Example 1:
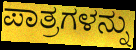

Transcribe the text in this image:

ಪಾತ್ರಗಳನ್ನು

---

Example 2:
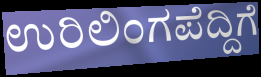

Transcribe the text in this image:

ಉರಿಲಿಂಗಪೆದ್ದಿಗೆ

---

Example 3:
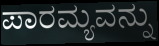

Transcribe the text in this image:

ಪಾರಮ್ಯವನ್ನು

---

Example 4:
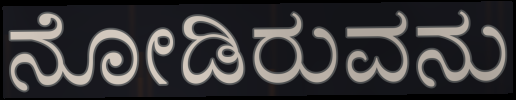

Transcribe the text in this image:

ನೋಡಿರುವನು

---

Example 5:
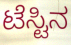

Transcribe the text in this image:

ಟೆಸ್ಟಿನ